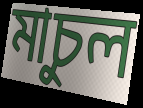
মাচুল